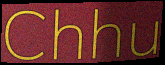
Chhu